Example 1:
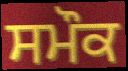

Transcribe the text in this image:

ਸਮੌਕ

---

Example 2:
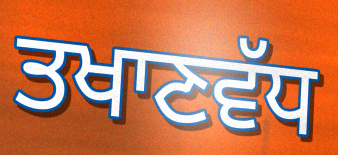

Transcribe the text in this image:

ਤਖਾਣਵੱਧ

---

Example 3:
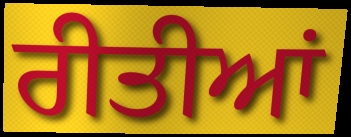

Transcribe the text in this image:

ਰੀਤੀਆਂ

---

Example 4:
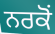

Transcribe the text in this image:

ਨਰਕੋਂ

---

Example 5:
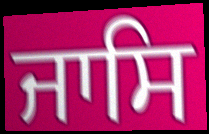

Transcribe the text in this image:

ਜਾਸਿ